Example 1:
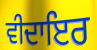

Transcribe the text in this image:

ਵੀਦਾਇਰ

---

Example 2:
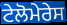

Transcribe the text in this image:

ਟੇਲੋਮੇਰੇਸ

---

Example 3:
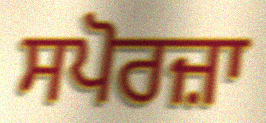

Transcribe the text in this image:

ਸਪੋਰਜ਼ਾ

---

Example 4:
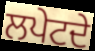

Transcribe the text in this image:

ਲਪੇਟਦੇ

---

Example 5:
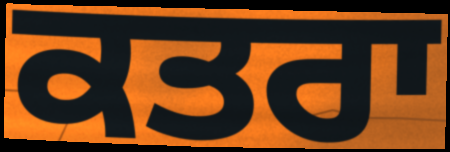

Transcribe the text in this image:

ਕਤਰਾ